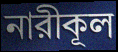
নারীকূল